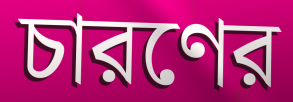
চারণের